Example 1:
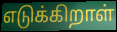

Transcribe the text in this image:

எடுக்கிறாள்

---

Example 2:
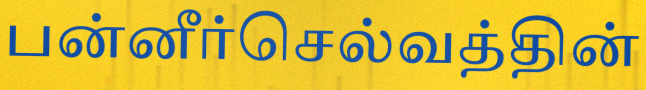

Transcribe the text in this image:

பன்னீர்செல்வத்தின்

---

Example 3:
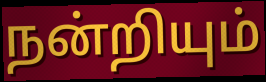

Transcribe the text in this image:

நன்றியும்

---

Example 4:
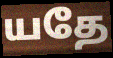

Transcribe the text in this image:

யதே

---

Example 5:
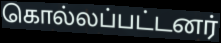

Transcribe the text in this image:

கொல்லப்பட்டனர்